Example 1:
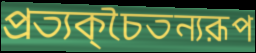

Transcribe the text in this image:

প্রত্যক্‌চৈতন্যরূপ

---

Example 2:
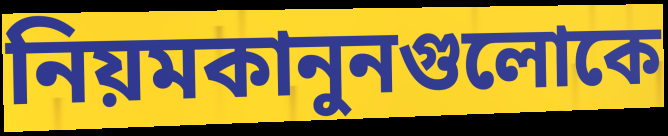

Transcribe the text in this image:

নিয়মকানুনগুলোকে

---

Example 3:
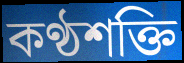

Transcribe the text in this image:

কণ্ঠশক্তি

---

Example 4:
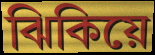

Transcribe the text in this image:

ঝিকিয়ে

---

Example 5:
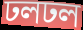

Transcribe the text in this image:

ঢলঢল